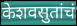
केशवसुतांचं